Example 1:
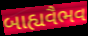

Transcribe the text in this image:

બાહ્યવૈભવ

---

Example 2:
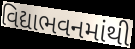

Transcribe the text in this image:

વિદ્યાભવનમાંથી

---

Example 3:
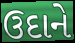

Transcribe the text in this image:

ઉદાને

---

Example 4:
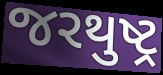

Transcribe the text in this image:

જરથુષ્ટ્ર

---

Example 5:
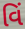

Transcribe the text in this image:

વિં